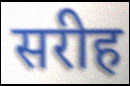
सरीह